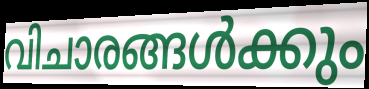
വിചാരങ്ങൾക്കും